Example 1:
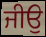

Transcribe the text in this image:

ਜੀਉ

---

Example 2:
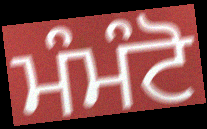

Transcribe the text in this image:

ਮੰਮੰਟੋ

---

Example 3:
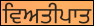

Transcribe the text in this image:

ਵਿਅਤੀਪਾਤ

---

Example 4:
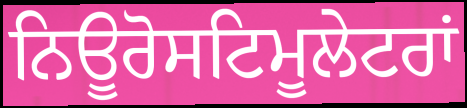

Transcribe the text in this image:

ਨਿਊਰੋਸਟਿਮੂਲੇਟਰਾਂ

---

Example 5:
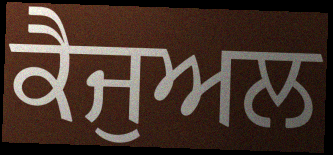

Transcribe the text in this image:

ਕੈਜੁਅਲ